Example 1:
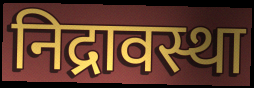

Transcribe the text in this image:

निद्रावस्था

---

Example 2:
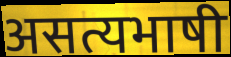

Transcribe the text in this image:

असत्यभाषी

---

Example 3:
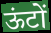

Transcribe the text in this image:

ऊंटों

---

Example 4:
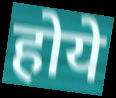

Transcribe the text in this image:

होये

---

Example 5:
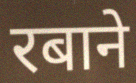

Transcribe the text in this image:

रबाने